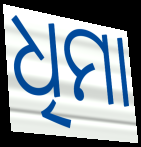
ଧିମା